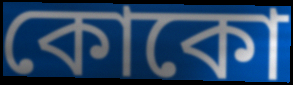
কোকো